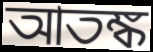
আতঙ্ক